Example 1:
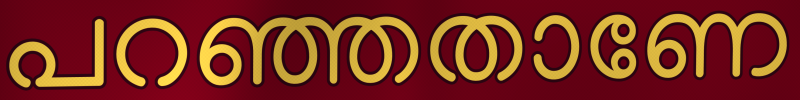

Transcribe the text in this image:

പറഞ്ഞതാണേ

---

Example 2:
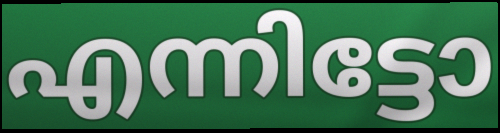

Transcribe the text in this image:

എന്നിട്ടോ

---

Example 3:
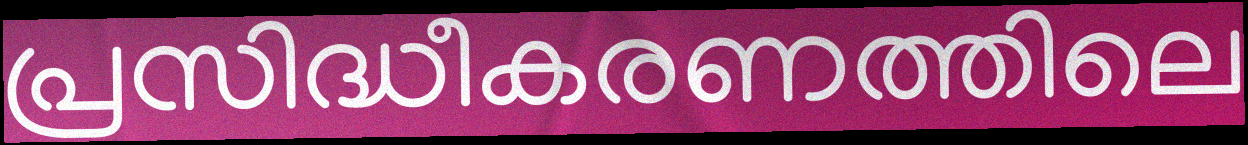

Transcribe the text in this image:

പ്രസിദ്ധീകരണത്തിലെ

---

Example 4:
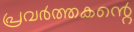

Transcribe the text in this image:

പ്രവർത്തകന്റെ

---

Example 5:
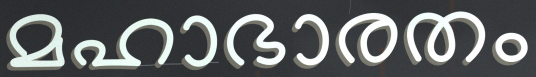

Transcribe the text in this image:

മഹാഭാരതം